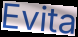
Evita